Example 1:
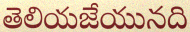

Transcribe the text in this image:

తెలియజేయునది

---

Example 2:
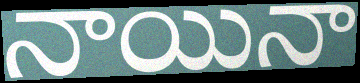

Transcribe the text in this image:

నాయినా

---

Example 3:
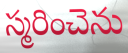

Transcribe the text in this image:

స్మరించెను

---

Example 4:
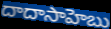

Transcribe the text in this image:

దాదాసాహెబు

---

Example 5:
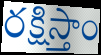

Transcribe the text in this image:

రక్షిస్తాం